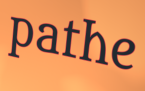
pathe